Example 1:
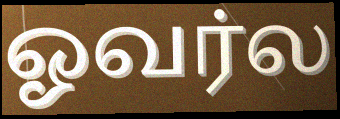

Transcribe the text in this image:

ஓவர்ல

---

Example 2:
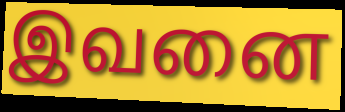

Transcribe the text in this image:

இவனை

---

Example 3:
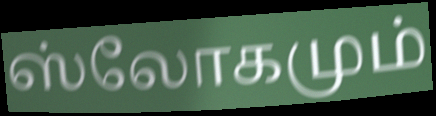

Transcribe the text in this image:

ஸ்லோகமும்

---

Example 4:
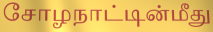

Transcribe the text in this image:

சோழநாட்டின்மீது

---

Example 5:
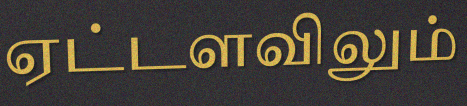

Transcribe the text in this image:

ஏட்டளவிலும்